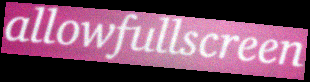
allowfullscreen